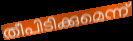
തീപിടിക്കുമെന്ന്